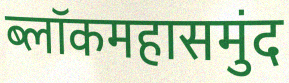
ब्लॉकमहासमुंद